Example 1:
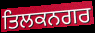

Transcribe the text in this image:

ਤਿਲਕਨਗਰ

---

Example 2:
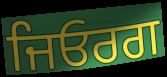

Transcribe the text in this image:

ਜਿਓਰਗ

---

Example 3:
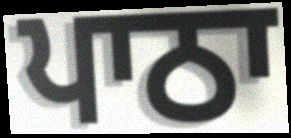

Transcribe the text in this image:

ਪਾਠਾ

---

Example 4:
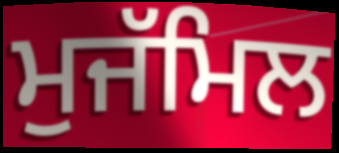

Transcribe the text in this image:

ਮੁਜੱਮਿਲ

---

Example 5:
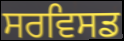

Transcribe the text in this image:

ਸਰਵਿਸਡ